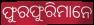
ଫୁରଫୁରିମାନେ